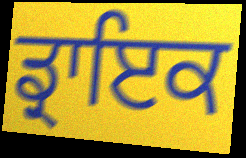
ਡ੍ਰਾਇਕ